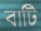
বাটি